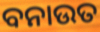
ବନାଉତ